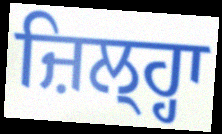
ਜ਼ਿਲ੍ਹ੍ਹਾ